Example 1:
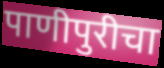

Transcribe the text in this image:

पाणीपुरीचा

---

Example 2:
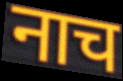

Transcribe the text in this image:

नाच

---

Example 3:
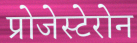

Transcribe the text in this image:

प्रोजेस्टेरोन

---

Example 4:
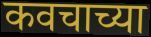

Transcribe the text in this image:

कवचाच्या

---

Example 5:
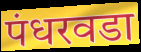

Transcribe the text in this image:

पंधरवडा